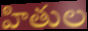
హితుల